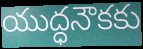
యుద్ధనౌకకు